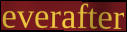
everafter